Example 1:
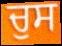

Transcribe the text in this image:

ਚੁਸ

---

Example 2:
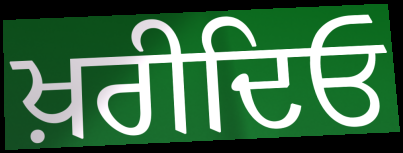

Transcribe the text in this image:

ਖ਼ਰੀਦਿਓ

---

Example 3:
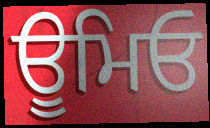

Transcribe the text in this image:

ਊਮਿਓ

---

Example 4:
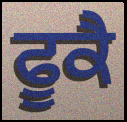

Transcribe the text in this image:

ਫੂਕੈ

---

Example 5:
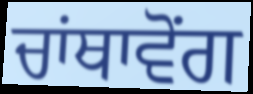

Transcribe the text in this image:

ਚਾਂਥਾਵੋਂਗ